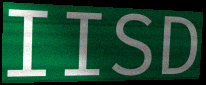
IISD